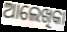
ଆଲେଖିକା